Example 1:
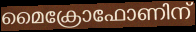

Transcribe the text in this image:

മൈക്രോഫോണിന്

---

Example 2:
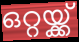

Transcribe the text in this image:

ഒറ്റയ്ക്ക്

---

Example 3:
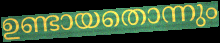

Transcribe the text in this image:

ഉണ്ടായതൊന്നും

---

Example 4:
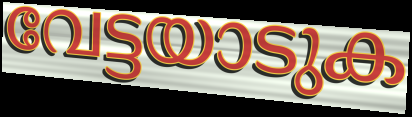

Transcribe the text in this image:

വേട്ടയാടുക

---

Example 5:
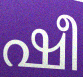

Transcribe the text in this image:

ഷീ